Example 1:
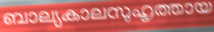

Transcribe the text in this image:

ബാല്യകാലസുഹൃത്തായ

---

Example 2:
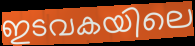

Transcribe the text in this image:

ഇടവകയിലെ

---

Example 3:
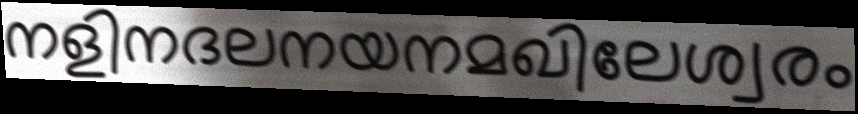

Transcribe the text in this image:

നളിനദലനയനമഖിലേശ്വരം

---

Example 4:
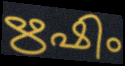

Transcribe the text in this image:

ഋഷിം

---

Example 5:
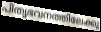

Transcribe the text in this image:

പിതൃഭവനത്തിലേക്കു